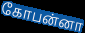
கோபன்னா